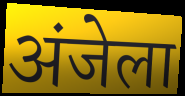
अंजेला